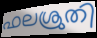
ഫലശ്രുതി